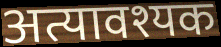
अत्यावश्यक